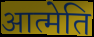
आत्मेति